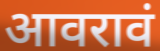
आवरावं